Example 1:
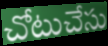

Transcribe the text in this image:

చోటుచేసు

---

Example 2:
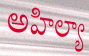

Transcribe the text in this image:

అహిల్యా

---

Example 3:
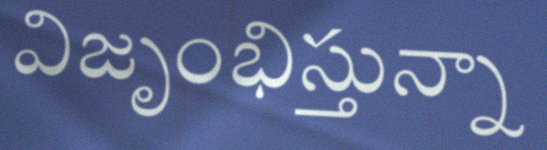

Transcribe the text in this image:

విజృంభిస్తున్నా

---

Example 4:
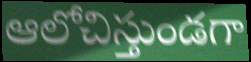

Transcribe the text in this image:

ఆలోచిస్తుండగా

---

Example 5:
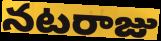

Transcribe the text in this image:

నటరాజు